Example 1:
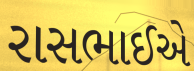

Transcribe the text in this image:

રાસભાઈએ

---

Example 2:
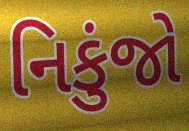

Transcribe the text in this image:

નિકુંજો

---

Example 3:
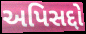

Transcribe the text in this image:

અપિસદ્દો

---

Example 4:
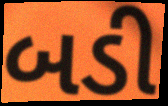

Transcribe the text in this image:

બડી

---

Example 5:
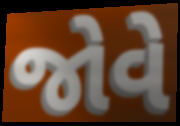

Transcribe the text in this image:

જોવે